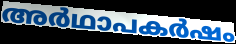
അർഥാപകർഷം